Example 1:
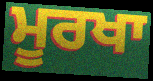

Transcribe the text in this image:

ਮੂਰਖਾ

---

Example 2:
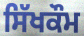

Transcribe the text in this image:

ਸਿੱਖਕੌਮ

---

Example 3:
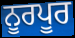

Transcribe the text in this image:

ਨੂਰਪੂਰ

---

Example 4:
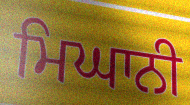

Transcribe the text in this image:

ਮਿਘਾਨੀ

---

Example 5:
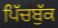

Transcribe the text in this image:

ਪਿੱਚਬੁੱਕ